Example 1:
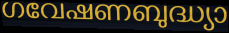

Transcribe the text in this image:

ഗവേഷണബുദ്ധ്യാ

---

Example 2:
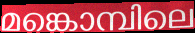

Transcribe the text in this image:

മങ്കൊമ്പിലെ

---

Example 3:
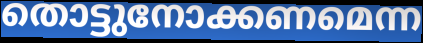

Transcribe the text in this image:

തൊട്ടുനോക്കണമെന്ന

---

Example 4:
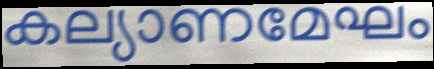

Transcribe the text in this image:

കല്യാണമേഘം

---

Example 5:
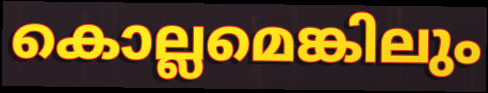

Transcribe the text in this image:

കൊല്ലമെങ്കിലും